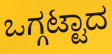
ಒಗ್ಗಟ್ಟಾದ